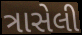
ત્રાસેલી